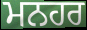
ਮਨਹਰ